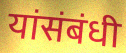
यांसंबंधी